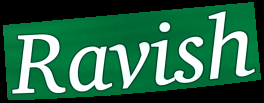
Ravish